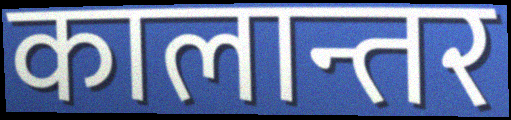
कालान्तर